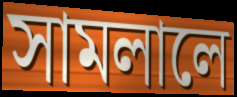
সামলালে